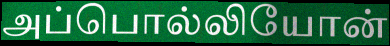
அப்பொல்லியோன்